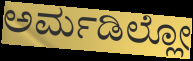
ಅರ್ಮಡಿಲ್ಲೋ